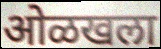
ओळखला